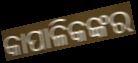
କାପାଳିକଙ୍କର